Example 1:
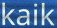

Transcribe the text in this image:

kaik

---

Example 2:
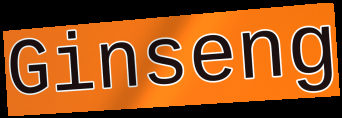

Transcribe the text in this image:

Ginseng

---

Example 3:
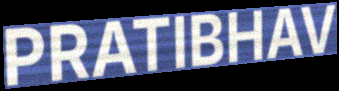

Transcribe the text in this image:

PRATIBHAV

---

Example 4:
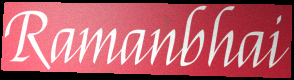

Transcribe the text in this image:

Ramanbhai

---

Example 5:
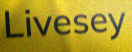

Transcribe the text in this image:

Livesey